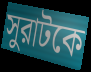
সুরাটকে